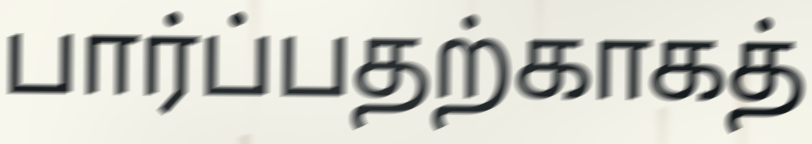
பார்ப்பதற்காகத்